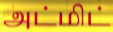
அட்மிட்